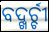
ବଦ୍ଖର୍ଚ୍ଚୀ